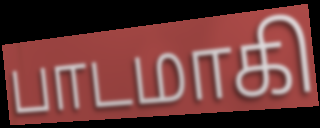
பாடமாகி